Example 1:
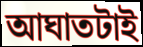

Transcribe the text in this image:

আঘাতটাই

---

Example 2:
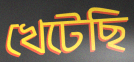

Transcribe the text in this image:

খেটেছি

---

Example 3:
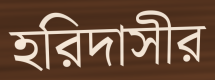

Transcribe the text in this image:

হরিদাসীর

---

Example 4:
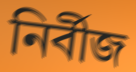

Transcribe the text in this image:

নির্বীজ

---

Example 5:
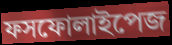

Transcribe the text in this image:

ফসফোলাইপেজ